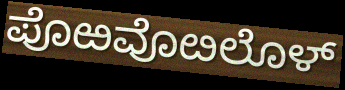
ಪೊಱವೊೞಲೊಳ್